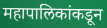
महापालिकांकडून